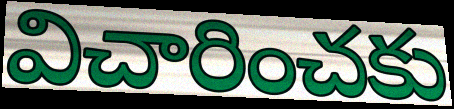
విచారించకు